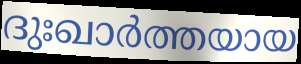
ദുഃഖാർത്തയായ